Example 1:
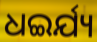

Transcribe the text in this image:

ଧଇର୍ଯ୍ୟ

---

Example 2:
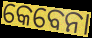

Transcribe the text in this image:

କେବେନା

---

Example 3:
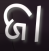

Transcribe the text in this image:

ଜା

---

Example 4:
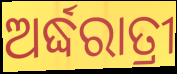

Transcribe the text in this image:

ଅର୍ଦ୍ଧରାତ୍ରୀ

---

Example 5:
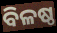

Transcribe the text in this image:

ବିଳଷ୍ଠ